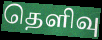
தெளிவு